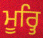
ਮੂਰ੍ਤਿ